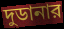
দুডানার